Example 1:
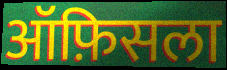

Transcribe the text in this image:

ऑफ़िसला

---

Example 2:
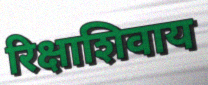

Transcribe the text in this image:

रिक्षाशिवाय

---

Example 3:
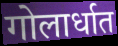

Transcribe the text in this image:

गोलार्धात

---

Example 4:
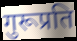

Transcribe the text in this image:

गुरूप्रति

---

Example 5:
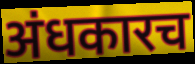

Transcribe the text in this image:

अंधकारच